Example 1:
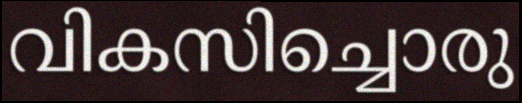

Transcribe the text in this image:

വികസിച്ചൊരു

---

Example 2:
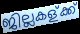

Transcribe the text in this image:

ജില്ലകള്ക്ക്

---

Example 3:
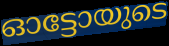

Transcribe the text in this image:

ഓട്ടോയുടെ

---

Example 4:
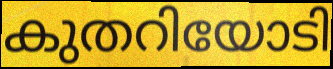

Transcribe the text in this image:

കുതറിയോടി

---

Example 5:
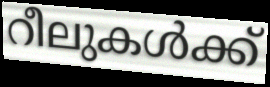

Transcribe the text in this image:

റീലുകൾക്ക്